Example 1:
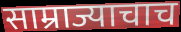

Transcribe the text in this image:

साम्राज्याचाच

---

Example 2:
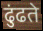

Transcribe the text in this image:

ढुंढते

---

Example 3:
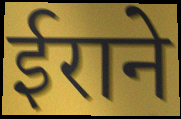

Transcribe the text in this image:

ईराने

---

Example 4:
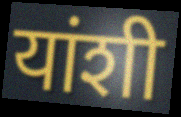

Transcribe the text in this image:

यांशी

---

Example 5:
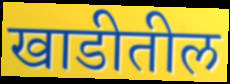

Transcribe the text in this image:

खाडीतील